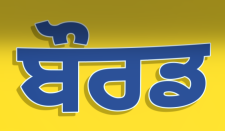
ਬੌਰਡ